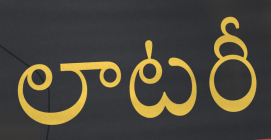
లాటరీ